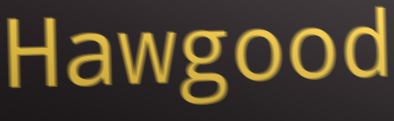
Hawgood